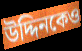
উদ্দিনকেও